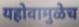
यहोवामुळेच